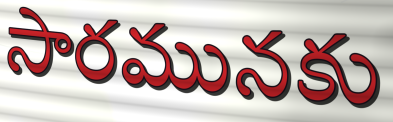
సారమునకు